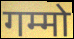
गम्मो